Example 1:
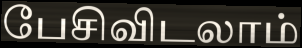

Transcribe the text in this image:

பேசிவிடலாம்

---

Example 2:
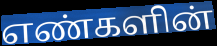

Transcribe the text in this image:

எண்களின்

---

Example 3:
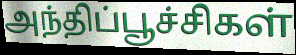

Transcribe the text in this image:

அந்திப்பூச்சிகள்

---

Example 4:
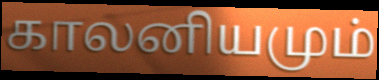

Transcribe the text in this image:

காலனியமும்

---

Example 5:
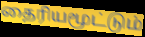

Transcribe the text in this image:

தைரியமூட்டும்